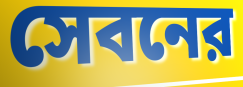
সেবনের